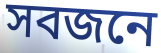
সবজনে